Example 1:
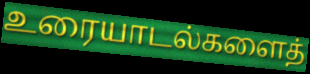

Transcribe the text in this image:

உரையாடல்களைத்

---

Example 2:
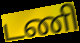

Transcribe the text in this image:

டணி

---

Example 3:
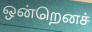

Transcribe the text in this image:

ஒன்றெனச்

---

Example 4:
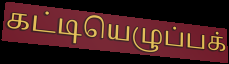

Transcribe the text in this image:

கட்டியெழுப்பக்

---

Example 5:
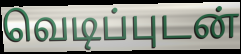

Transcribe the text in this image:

வெடிப்புடன்